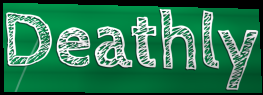
Deathly